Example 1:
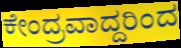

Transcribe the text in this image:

ಕೇಂದ್ರವಾದ್ದರಿಂದ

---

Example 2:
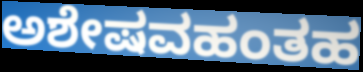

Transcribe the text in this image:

ಅಶೇಷವಹಂತಹ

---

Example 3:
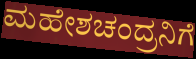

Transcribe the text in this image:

ಮಹೇಶಚಂದ್ರನಿಗೆ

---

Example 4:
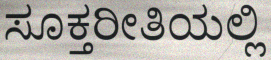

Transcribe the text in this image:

ಸೂಕ್ತರೀತಿಯಲ್ಲಿ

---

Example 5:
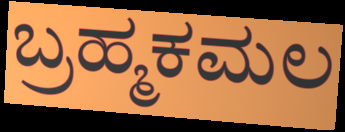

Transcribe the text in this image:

ಬ್ರಹ್ಮಕಮಲ